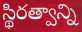
స్థిరత్వాన్ని